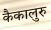
कैकालुरु